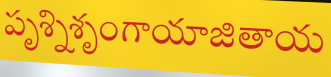
పృశ్నిశృంగాయాజితాయ